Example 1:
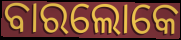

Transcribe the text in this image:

ବାରଲୋକେ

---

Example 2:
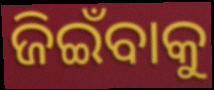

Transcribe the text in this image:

ଜିଇଁବାକୁ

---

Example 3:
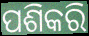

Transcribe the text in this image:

ପଶିକରି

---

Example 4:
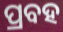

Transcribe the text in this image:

ପ୍ରବହ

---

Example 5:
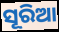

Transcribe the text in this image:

ସୂରିଆ